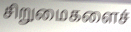
சிறுமைகளைச்